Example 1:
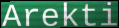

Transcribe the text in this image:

Arekti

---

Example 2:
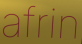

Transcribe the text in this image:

afrin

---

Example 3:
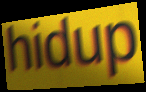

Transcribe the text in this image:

hidup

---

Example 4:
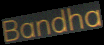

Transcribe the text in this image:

Bandha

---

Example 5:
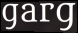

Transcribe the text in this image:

garg